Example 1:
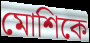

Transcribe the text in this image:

মোশিকে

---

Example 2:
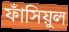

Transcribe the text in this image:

ফাঁসিয়ুল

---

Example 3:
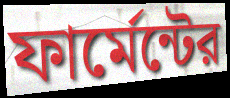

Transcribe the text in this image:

ফার্মেন্টের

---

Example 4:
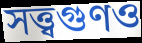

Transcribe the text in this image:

সত্ত্বগুণও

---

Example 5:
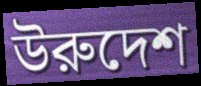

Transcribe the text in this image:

উরুদেশ